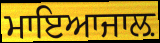
ਮਾਇਆਜਾਲ਼